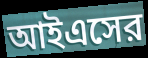
আইএসের